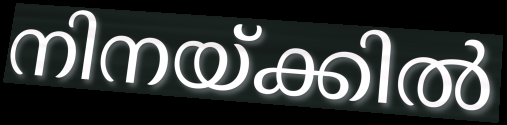
നിനയ്ക്കിൽ